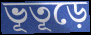
ভূতূড়ে